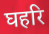
घहरि